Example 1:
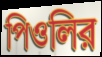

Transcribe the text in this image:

পিওলির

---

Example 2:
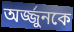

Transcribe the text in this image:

অর্জ্জুনকে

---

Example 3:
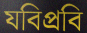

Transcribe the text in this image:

যবিপ্রবি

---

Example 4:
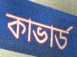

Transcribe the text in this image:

কাভার্ড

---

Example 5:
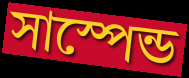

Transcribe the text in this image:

সাস্পেন্ড